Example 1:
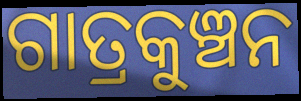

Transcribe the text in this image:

ଗାତ୍ରକୁଞ୍ଚନ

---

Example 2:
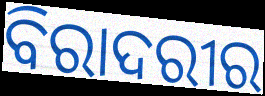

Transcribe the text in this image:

ବିରାଦରୀର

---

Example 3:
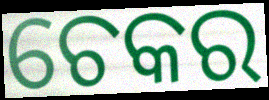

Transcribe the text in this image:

ଚେକର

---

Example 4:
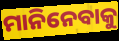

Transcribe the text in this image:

ମାନିନେବାକୁ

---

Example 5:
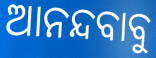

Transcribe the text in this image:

ଆନନ୍ଦବାବୁ